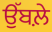
ਉੱਬਲ਼ੇ